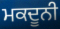
ਮਕਦੂਨੀ